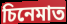
চিনেমাত